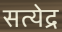
सत्येद्र